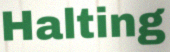
Halting